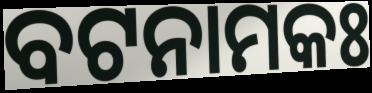
ବଟନାମକଃ